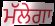
ਮੱਲੇਗਾ